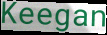
Keegan